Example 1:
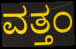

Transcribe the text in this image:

ವತ್ತಂ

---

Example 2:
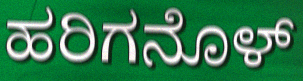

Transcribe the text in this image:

ಹರಿಗನೊಳ್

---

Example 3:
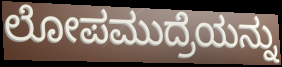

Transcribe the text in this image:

ಲೋಪಮುದ್ರೆಯನ್ನು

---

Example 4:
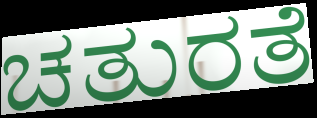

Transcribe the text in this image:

ಚತುರತೆ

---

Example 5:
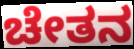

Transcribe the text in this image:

ಚೇತನ